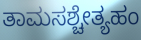
ತಾಮಸಶ್ಚೇತ್ಯಹಂ